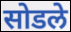
सोडले